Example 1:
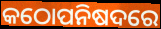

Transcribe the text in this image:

କଠୋପନିଷଦରେ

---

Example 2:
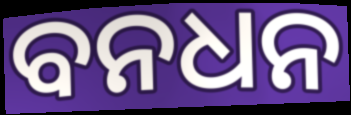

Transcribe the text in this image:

ବନଧନ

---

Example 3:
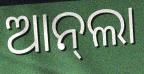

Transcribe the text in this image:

ଆନ୍‌ଲା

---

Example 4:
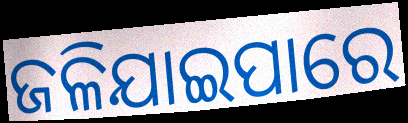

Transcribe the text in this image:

ଜଳିଯାଇପାରେ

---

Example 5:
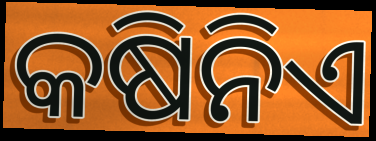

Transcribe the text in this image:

କଷିନିଏ